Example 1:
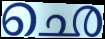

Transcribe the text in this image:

ഛെ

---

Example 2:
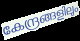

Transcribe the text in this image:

കേന്ദ്രങ്ങളിലും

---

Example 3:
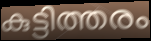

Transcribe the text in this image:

കുട്ടിത്തരം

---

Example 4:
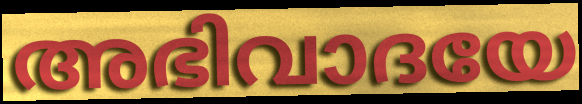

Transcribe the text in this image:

അഭിവാദയേ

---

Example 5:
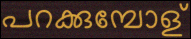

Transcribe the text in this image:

പറക്കുമ്പോള്